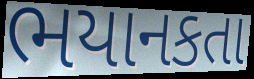
ભયાનકતા